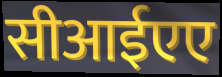
सीआईएए